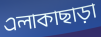
এলাকাছাড়া